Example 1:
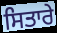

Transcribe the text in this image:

ਸਿਤਾਰੇ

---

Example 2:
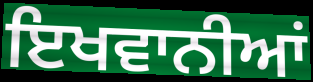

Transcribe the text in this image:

ਇਖਵਾਨੀਆਂ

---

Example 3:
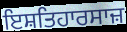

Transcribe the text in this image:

ਇਸ਼ਤਿਹਾਰਸਾਜ਼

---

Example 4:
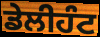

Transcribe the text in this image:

ਡੇਲੀਹੰਟ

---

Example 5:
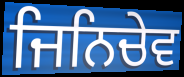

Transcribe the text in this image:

ਜਿਨਿਚੇਵ